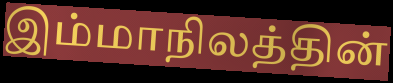
இம்மாநிலத்தின்